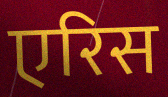
एरिस